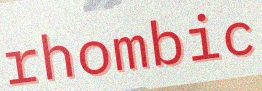
rhombic